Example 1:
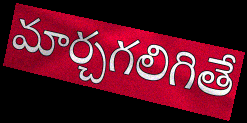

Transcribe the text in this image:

మార్చగలిగితే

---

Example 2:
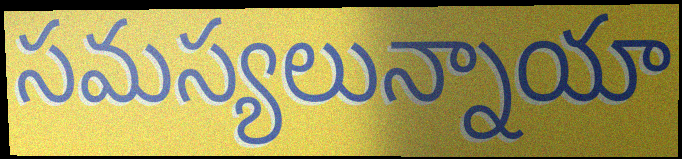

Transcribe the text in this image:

సమస్యలున్నాయా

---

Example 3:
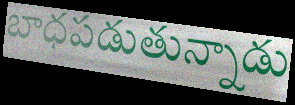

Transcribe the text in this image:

బాధపడుతున్నాడు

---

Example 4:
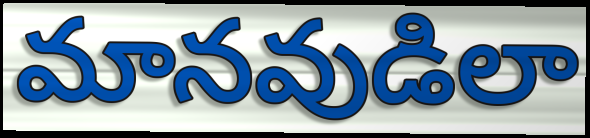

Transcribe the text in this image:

మానవుడిలా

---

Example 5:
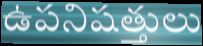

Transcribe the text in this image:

ఉపనిషత్తులు